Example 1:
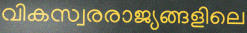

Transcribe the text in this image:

വികസ്വരരാജ്യങ്ങളിലെ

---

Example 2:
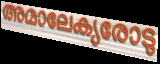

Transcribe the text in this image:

അമാലേക്യരോടു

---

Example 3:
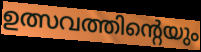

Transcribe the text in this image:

ഉത്സവത്തിന്റെയും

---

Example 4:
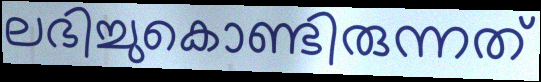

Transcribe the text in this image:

ലഭിച്ചുകൊണ്ടിരുന്നത്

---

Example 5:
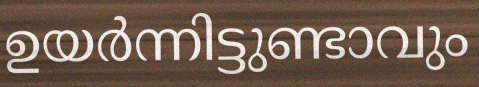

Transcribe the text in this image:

ഉയർന്നിട്ടുണ്ടാവും